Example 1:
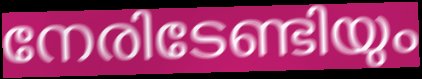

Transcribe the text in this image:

നേരിടേണ്ടിയും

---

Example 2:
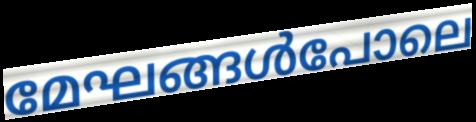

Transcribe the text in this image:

മേഘങ്ങൾപോലെ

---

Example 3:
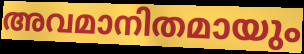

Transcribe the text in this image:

അവമാനിതമായും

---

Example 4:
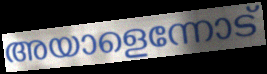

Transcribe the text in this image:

അയാളെന്നോട്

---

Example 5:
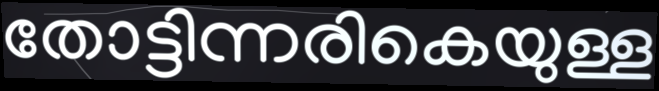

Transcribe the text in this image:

തോട്ടിന്നരികെയുള്ള